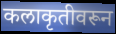
कलाकृतीवरून